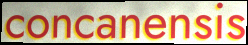
concanensis